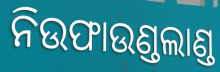
ନିଉଫାଉଣ୍ଡଲାଣ୍ଡ